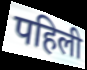
पहिली